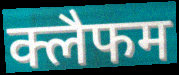
क्लैफम